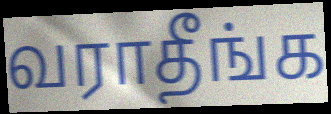
வராதீங்க